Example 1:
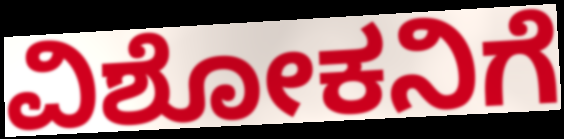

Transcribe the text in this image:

ವಿಶೋಕನಿಗೆ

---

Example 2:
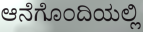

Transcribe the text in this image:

ಆನೆಗೊಂದಿಯಲ್ಲಿ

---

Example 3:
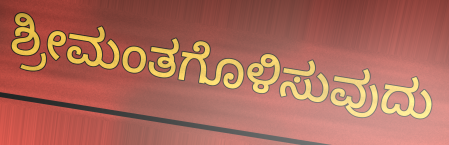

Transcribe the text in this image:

ಶ್ರೀಮಂತಗೊಳಿಸುವುದು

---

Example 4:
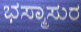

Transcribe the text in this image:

ಭಸ್ಮಾಸುರ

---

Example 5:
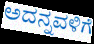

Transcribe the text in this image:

ಅದನ್ನವಳಿಗೆ